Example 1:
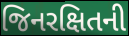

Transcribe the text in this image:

જિનરક્ષિતની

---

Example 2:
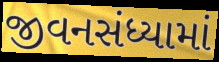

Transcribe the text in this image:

જીવનસંધ્યામાં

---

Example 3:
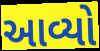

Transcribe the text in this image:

આવ્યો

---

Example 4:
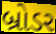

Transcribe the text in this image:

બ્રોડર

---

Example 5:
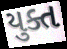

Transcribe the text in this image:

યુક્ત